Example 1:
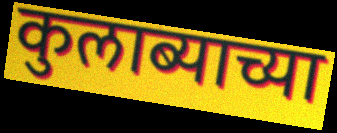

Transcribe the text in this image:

कुलाब्याच्या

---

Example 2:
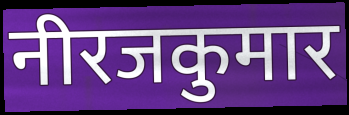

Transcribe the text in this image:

नीरजकुमार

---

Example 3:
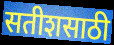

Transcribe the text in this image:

सतीशसाठी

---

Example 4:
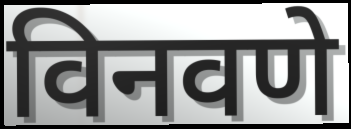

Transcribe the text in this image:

विनवणे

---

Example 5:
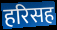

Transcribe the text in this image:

हरिसह